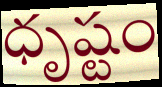
ధృష్టం